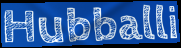
Hubballi